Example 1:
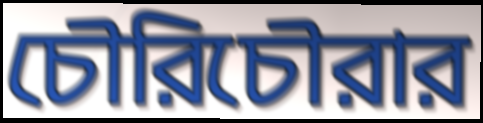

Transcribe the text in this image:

চৌরিচৌরার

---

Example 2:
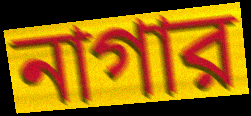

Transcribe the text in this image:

নাগার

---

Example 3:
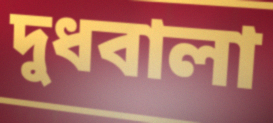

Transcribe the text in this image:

দুধবালা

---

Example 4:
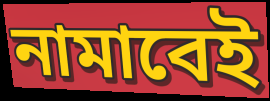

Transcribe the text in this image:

নামাবেই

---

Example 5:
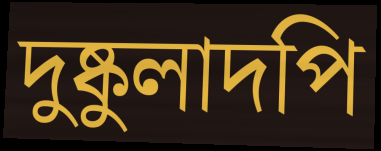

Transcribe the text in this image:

দুষ্কুলাদপি